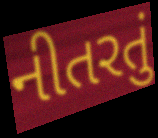
નીતરતું